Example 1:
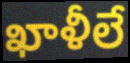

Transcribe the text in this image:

ఖాళీలే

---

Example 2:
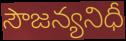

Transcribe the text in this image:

సౌజన్యనిధీ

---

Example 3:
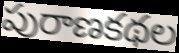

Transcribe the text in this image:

పురాణకథల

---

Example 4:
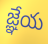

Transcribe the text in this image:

జ్ఞేయ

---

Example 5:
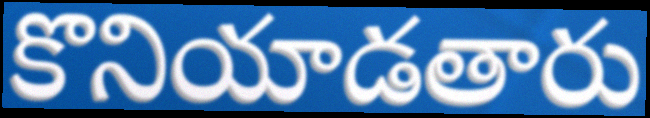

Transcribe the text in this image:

కొనియాడతారు